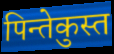
पिन्तेकुस्त